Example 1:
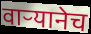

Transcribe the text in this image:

वाऱ्यानेच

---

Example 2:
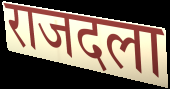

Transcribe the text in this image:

राजदला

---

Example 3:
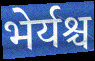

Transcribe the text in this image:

भेर्यश्च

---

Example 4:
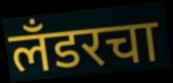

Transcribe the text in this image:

लँडरचा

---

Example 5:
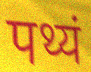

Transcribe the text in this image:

पथ्यं